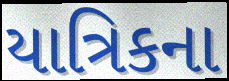
યાત્રિકના